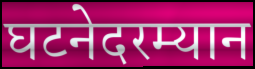
घटनेदरम्यान